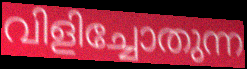
വിളിച്ചോതുന്ന